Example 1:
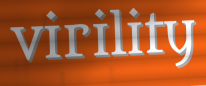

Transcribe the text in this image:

virility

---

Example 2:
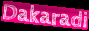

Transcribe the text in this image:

Dakaradi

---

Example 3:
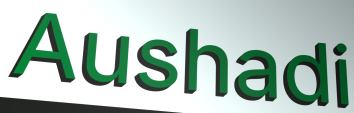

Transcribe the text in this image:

Aushadi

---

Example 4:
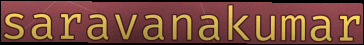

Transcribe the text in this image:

saravanakumar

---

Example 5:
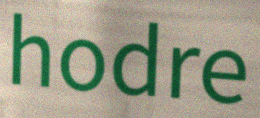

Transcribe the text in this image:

hodre